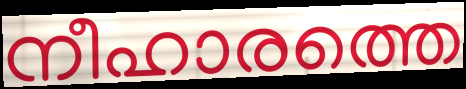
നീഹാരത്തെ